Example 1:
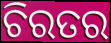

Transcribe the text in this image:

ଚିରତର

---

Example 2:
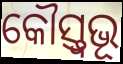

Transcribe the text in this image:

କୌସ୍ତ୍ୱଭୂ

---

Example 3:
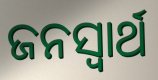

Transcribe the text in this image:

ଜନସ୍ଵାର୍ଥ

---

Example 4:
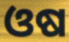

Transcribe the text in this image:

ଓଷ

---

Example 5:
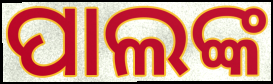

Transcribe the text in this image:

ପାଲଙ୍କ